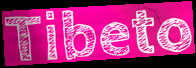
Tibeto